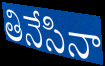
తినేసినా